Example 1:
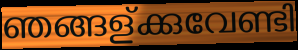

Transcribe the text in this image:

ഞങ്ങള്ക്കുവേണ്ടി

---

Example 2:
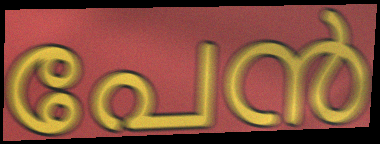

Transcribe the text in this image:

പേൻ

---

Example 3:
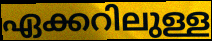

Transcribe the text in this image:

ഏക്കറിലുള്ള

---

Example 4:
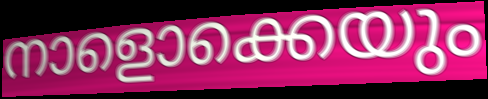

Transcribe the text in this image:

നാളൊക്കെയും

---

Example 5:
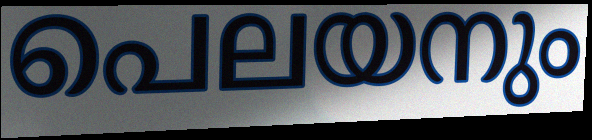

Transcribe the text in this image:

പെലയനും